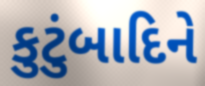
કુટુંબાદિને